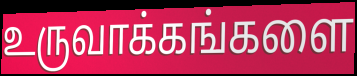
உருவாக்கங்களை